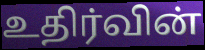
உதிர்வின்